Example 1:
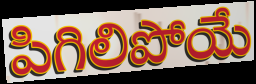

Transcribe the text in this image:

పిగిలిపోయే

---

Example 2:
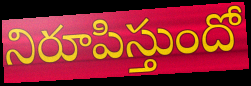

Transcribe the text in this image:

నిరూపిస్తుందో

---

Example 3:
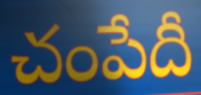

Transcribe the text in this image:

చంపేదీ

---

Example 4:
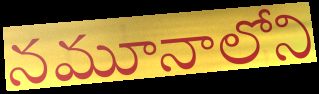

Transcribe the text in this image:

నమూనాలోని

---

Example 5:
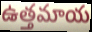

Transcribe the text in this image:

ఉత్తమాయ